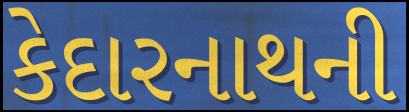
કેદારનાથની